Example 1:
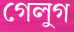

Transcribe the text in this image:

গেলুগ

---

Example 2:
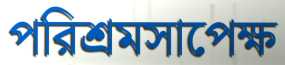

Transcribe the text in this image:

পরিশ্রমসাপেক্ষ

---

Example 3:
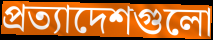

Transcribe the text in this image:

প্রত্যাদেশগুলো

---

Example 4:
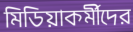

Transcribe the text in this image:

মিডিয়াকর্মীদের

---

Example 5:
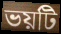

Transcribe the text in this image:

ভয়টি